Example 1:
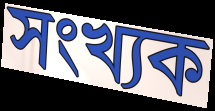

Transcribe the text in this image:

সংখ্যক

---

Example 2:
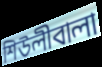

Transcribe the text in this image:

শিউলীবালা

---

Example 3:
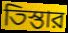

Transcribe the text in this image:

তিস্তার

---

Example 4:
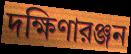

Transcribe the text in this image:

দক্ষিণারঞ্জন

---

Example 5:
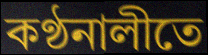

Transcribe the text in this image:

কণ্ঠনালীতে